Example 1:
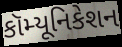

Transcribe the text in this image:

કૉમ્યૂનિકેશન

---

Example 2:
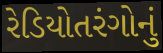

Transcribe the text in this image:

રેડિયોતરંગોનું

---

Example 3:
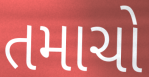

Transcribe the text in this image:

તમાચો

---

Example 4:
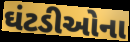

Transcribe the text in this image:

ઘંટડીઓના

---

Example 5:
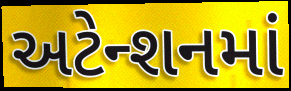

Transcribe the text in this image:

અટેન્શનમાં